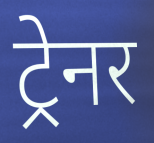
ट्रेनर